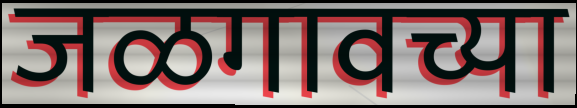
जळगावच्या